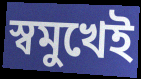
স্বমুখেই